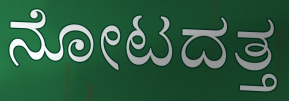
ನೋಟದತ್ತ